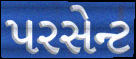
પરસેન્ટ